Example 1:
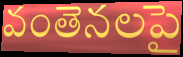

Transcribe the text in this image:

వంతెనలపై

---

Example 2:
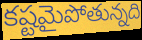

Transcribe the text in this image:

కష్టమైపోతున్నది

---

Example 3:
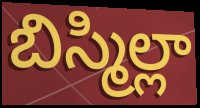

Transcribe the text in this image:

బిస్మిల్లా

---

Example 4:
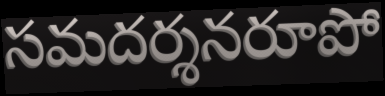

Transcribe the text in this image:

సమదర్శనరూపో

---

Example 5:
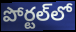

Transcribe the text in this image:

పోర్టల్‌లో